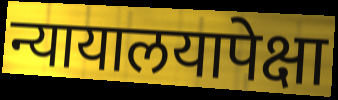
न्यायालयापेक्षा